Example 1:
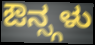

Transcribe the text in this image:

ಔನ್ಸ್ಗಳು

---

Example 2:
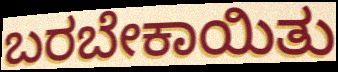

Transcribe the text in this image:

ಬರಬೇಕಾಯಿತು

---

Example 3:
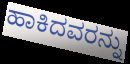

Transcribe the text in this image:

ಹಾಕಿದವರನ್ನು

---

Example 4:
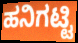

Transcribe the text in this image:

ಹನಿಗಟ್ಟಿ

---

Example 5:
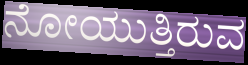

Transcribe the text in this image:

ನೋಯುತ್ತಿರುವ